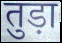
तुड़ा